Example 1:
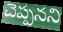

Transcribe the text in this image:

చెప్పనని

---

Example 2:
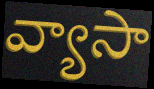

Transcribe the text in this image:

వ్యాసా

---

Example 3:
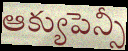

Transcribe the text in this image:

ఆక్యుపెన్సీ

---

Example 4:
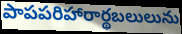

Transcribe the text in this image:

పాపపరిహారార్థబలులును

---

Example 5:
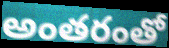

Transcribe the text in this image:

అంతరంతో